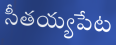
సీతయ్యపేట